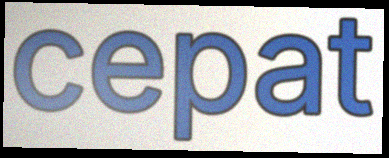
cepat